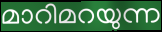
മാറിമറയുന്ന